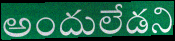
అందులేడని